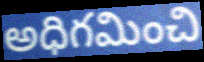
అధిగమించి